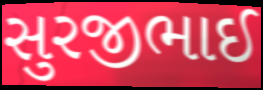
સુરજીભાઈ